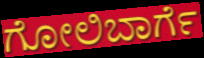
ಗೋಲಿಬಾರ್ಗೆ